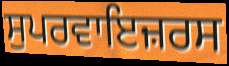
ਸੁਪਰਵਾਇਜ਼ਰਸ